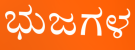
ಭುಜಗಳ